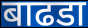
बाढडा